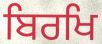
ਬਿਰਖਿ